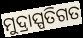
ମୁଦ୍ରାସ୍ପତିଗତ